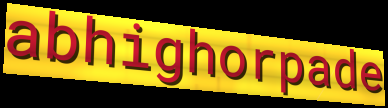
abhighorpade